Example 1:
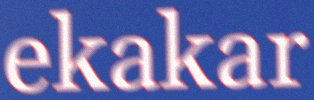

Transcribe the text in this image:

ekakar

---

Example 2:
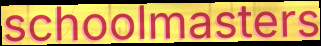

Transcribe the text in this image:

schoolmasters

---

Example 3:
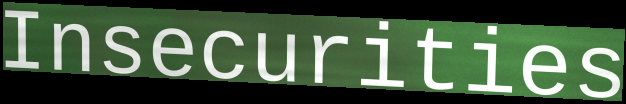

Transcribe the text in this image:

Insecurities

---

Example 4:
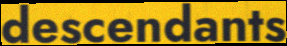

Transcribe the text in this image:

descendants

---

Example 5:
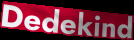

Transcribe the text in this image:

Dedekind